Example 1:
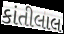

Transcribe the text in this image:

કાંતીલાલ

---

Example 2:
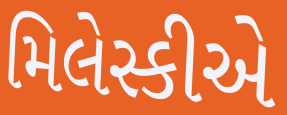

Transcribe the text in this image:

મિલેસ્કીએ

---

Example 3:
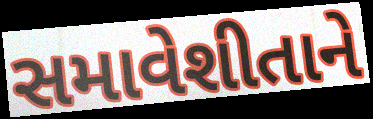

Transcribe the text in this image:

સમાવેશીતાને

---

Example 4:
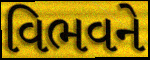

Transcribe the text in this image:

વિભવને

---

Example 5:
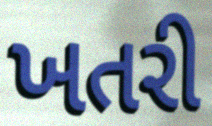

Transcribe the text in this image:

ખતરી